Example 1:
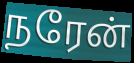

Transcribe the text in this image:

நரேன்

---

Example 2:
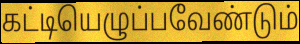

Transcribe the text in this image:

கட்டியெழுப்பவேண்டும்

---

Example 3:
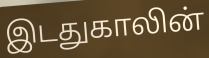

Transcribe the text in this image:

இடதுகாலின்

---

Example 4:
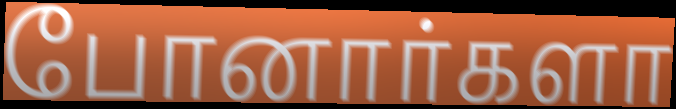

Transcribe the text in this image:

போனார்களா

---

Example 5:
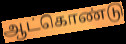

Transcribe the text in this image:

ஆட்கொண்டு